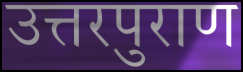
उत्तरपुराण